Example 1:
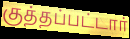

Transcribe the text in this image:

குத்தப்பட்டார்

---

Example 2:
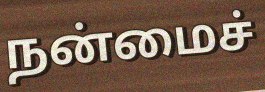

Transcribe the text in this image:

நன்மைச்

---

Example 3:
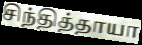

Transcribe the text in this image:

சிந்தித்தாயா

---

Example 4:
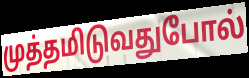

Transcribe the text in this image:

முத்தமிடுவதுபோல்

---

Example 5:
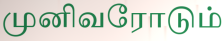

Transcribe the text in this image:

முனிவரோடும்